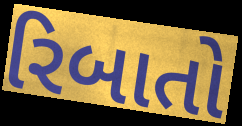
રિબાતો